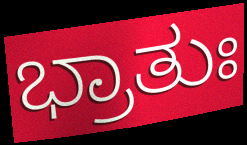
ಭ್ರಾತುಃ